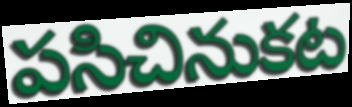
పసిచినుకట